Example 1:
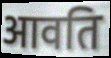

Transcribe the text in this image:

आवति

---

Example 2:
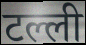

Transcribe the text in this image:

टल्ली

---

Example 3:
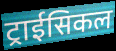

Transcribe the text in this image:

ट्राईसिकल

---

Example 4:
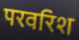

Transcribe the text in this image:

परवरिश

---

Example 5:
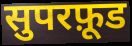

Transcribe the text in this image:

सुपरफ़ूड